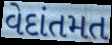
વેદાંતમત